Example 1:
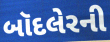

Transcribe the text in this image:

બૉદલેરની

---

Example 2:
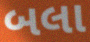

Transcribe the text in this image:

બલા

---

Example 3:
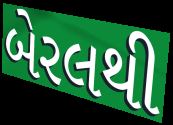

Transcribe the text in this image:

બેરલથી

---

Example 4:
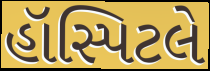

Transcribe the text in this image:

હૉસ્પિટલે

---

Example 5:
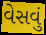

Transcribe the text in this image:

વેસવું